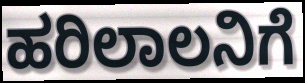
ಹರಿಲಾಲನಿಗೆ